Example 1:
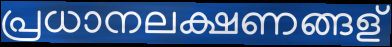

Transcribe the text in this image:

പ്രധാനലക്ഷണങ്ങള്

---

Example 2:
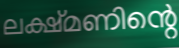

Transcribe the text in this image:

ലക്ഷ്മണിന്റെ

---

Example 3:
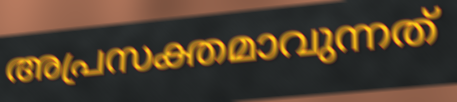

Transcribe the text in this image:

അപ്രസക്തമാവുന്നത്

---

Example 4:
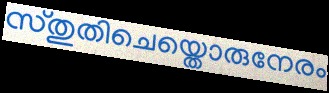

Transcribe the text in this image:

സ്തുതിചെയ്തൊരുനേരം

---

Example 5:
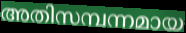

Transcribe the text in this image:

അതിസമ്പന്നമായ